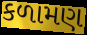
કળામણ